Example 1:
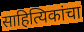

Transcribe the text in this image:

साहित्यिकांचा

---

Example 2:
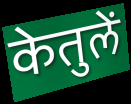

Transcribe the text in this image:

केतुलें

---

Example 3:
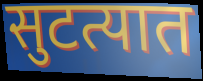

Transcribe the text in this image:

सुटत्यात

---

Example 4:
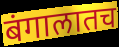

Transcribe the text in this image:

बंगालातच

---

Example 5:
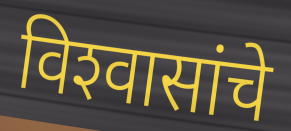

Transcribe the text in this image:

विश्‍वासांचे